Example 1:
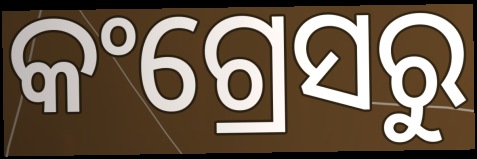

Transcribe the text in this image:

କଂଗ୍ରେସରୁ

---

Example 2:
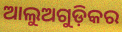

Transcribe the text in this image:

ଆଲୁଅଗୁଡ଼ିକର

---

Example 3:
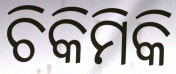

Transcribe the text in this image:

ଚିକିମିକି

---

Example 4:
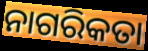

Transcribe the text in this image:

ନାଗରିକତା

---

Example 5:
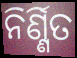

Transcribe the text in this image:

ନିର୍ଣ୍ଣିତ